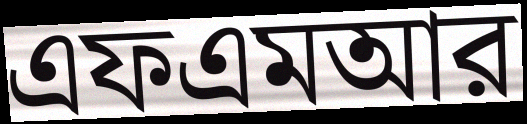
এফএমআর